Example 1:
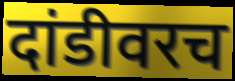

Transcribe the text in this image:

दांडीवरच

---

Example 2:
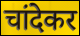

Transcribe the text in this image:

चांदेकर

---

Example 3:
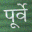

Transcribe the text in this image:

पूर्वे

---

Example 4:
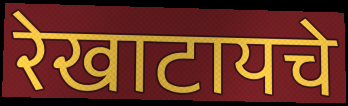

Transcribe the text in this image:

रेखाटायचे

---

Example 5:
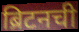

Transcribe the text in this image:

ब्रिटनची